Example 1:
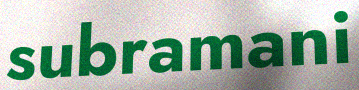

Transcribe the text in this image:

subramani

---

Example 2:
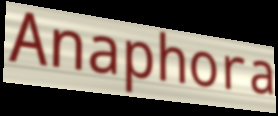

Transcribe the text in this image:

Anaphora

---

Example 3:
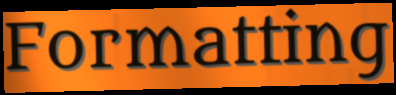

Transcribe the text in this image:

Formatting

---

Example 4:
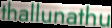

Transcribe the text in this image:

thallunathu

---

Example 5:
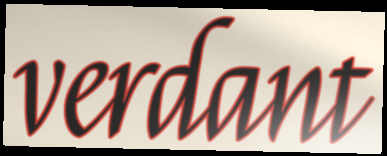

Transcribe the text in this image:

verdant